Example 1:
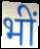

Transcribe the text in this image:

भीं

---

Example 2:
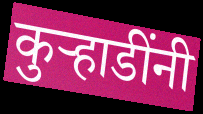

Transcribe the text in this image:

कुर्‍हाडींनी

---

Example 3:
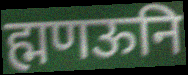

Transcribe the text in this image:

ह्मणऊनि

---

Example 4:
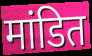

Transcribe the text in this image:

मांडित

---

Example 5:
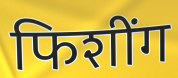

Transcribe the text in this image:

फिशींग